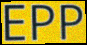
EPP